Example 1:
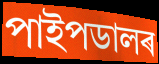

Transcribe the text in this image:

পাইপডালৰ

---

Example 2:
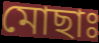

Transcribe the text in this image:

মোছাঃ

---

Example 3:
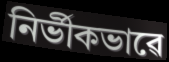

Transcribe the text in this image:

নিৰ্ভীকভাৱে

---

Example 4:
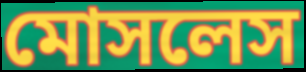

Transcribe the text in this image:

মোসলেস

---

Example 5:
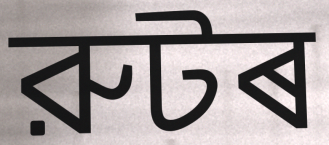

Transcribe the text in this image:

ৰুটৰ